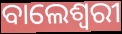
ବାଲେଶ୍ୱରୀ